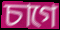
চাগে